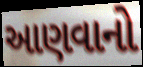
આણવાનો